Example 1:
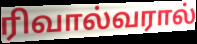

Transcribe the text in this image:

ரிவால்வரால்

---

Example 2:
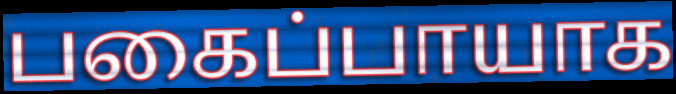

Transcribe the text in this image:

பகைப்பாயாக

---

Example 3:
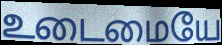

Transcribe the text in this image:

உடைமையே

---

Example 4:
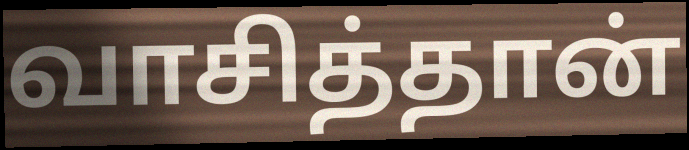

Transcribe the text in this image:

வாசித்தான்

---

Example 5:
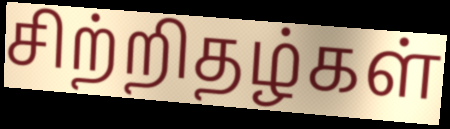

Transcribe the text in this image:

சிற்றிதழ்கள்